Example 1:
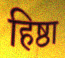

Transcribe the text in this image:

हिष्ठा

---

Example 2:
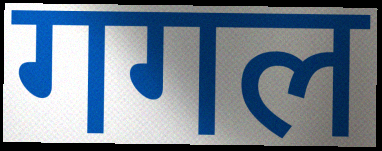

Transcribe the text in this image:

गगल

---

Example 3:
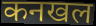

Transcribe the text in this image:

कनखल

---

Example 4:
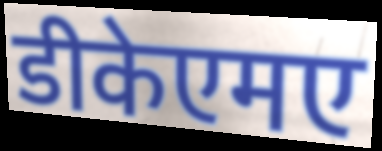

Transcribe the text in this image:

डीकेएमए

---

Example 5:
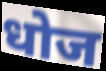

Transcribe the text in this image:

धोज